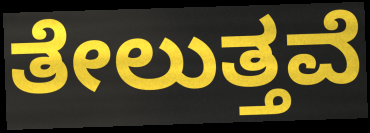
ತೇಲುತ್ತವೆ